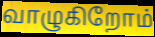
வாழுகிறோம்